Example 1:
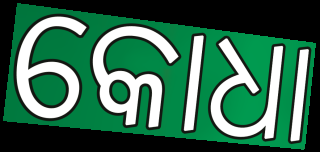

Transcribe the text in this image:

କୋଧା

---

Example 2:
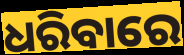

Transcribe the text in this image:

ଧରିବାରେ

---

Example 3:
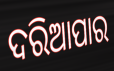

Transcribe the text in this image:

ଦରିଆପାର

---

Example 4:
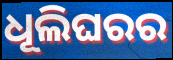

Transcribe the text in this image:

ଧୂଲିଘରର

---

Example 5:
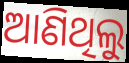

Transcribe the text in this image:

ଆଣିଥିଲୁ